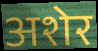
अशेर